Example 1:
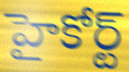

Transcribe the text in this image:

హైకోర్ట్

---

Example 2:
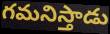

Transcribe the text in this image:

గమనిస్తాడు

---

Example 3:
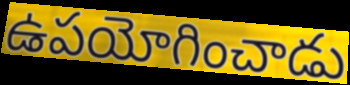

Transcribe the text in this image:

ఉపయోగించాడు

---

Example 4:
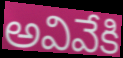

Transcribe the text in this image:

అవివేకి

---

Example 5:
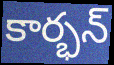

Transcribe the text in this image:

కార్భన్